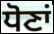
ਧੋਣਾਂ